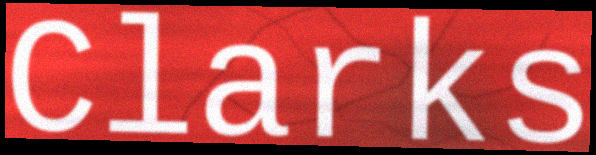
Clarks